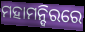
ମହାମନ୍ଦିରରେ